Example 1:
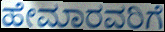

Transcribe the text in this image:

ಹೇಮಾರವರಿಗೆ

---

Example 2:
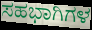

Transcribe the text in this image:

ಸಹಭಾಗಿಗಳ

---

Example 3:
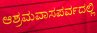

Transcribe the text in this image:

ಆಶ್ರಮವಾಸಪರ್ವದಲ್ಲಿ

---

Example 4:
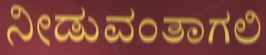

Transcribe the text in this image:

ನೀಡುವಂತಾಗಲಿ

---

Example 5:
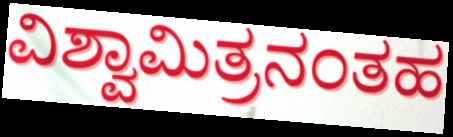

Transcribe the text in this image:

ವಿಶ್ವಾಮಿತ್ರನಂತಹ